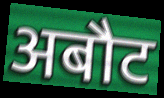
अबौट